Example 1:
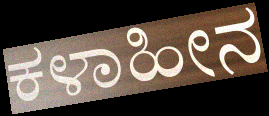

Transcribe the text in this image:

ಕಳಾಹೀನ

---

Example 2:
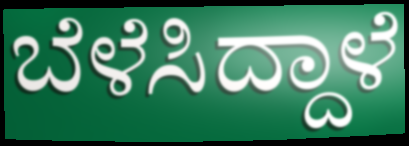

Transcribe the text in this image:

ಬೆಳೆಸಿದ್ದಾಳೆ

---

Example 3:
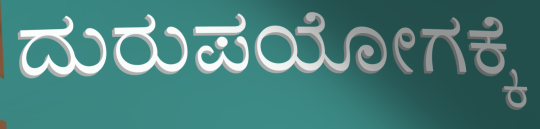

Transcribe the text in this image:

ದುರುಪಯೋಗಕ್ಕೆ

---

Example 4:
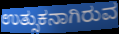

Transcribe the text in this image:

ಉತ್ಸುಕನಾಗಿರುವ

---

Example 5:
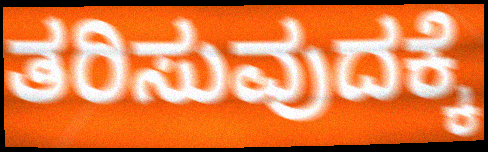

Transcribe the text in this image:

ತರಿಸುವುದಕ್ಕೆ